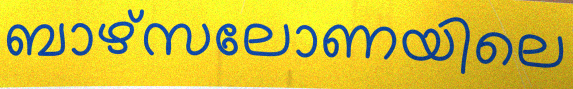
ബാഴ്സലോണയിലെ